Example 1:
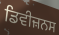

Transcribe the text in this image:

ਡਿਵੀਜ਼ਨਸ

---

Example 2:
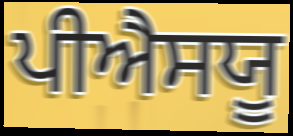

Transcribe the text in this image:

ਪੀਐਸਯੂ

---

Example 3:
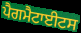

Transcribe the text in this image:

ਪੈਗਮੈਟਾਈਟਸ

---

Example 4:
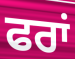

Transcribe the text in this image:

ਫਰਾਂ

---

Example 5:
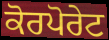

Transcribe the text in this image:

ਕੋਰਪੋਰੇਟ